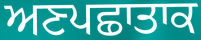
ਅਣਪਛਾਤਾਕ